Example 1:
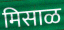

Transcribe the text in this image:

मिसाळ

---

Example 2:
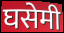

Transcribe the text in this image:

घसेमी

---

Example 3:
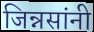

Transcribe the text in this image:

जिन्नसांनी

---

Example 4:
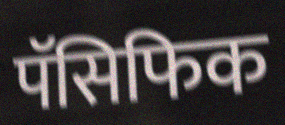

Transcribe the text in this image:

पॅसिफिक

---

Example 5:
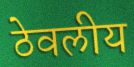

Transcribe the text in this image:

ठेवलीय